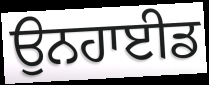
ਉਨਹਾਈਡ